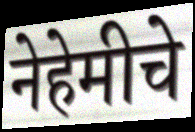
नेहेमीचे